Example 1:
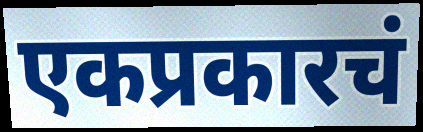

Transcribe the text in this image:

एकप्रकारचं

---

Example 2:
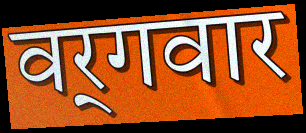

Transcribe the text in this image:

वर्गवार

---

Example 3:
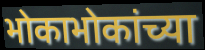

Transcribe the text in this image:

भोकाभोकांच्या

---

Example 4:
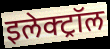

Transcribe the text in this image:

इलेक्ट्रॉल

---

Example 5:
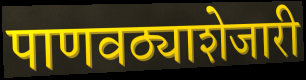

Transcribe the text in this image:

पाणवठ्याशेजारी